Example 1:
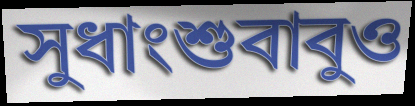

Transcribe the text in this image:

সুধাংশুবাবুও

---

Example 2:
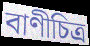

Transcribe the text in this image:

বাণীচিত্র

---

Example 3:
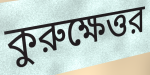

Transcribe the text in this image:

কুরুক্ষেত্তর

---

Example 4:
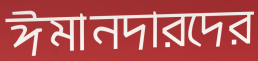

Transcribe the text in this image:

ঈমানদারদের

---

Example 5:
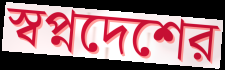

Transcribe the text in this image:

স্বপ্নদেশের